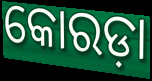
କୋରଡ଼ା